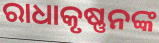
ରାଧାକୃଷ୍ଣନଙ୍କ